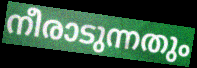
നീരാടുന്നതും